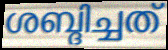
ശബ്ദിച്ചത്